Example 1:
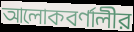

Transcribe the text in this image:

আলোকবর্ণালীর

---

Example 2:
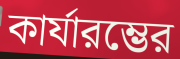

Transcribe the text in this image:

কার্যারম্ভের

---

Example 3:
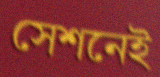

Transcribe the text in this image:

সেশনেই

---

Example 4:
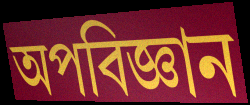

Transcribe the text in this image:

অপবিজ্ঞান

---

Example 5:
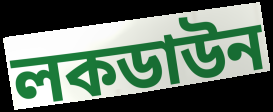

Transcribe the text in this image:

লকডাউন